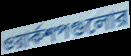
ওয়ার্কশপগুলোর